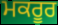
ਮਕਰੂਰ